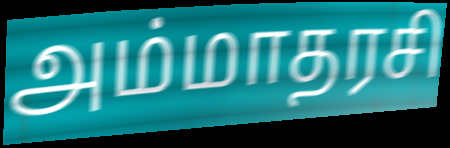
அம்மாதரசி